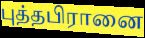
புத்தபிரானை